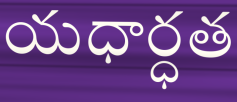
యధార్ధత